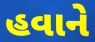
હવાને